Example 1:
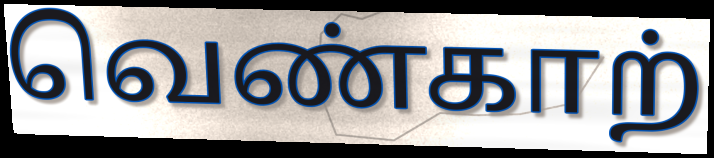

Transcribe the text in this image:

வெண்காற்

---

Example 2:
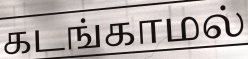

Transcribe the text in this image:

கடங்காமல்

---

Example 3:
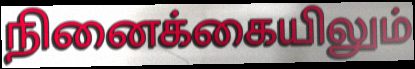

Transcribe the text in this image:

நினைக்கையிலும்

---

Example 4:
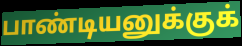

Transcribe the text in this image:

பாண்டியனுக்குக்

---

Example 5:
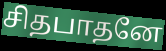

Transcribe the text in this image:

சிதபாதனே